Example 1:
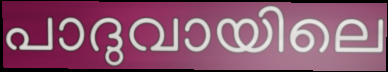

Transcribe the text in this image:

പാദുവായിലെ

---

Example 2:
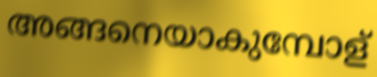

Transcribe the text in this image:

അങ്ങനെയാകുമ്പോള്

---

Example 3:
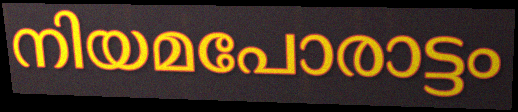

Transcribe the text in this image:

നിയമപോരാട്ടം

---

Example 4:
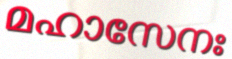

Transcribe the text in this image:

മഹാസേനഃ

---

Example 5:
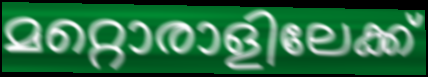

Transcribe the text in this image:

മറ്റൊരാളിലേക്ക്